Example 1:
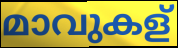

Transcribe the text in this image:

മാവുകള്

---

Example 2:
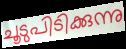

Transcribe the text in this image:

ചൂടുപിടിക്കുന്നു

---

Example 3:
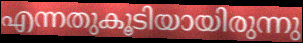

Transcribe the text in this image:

എന്നതുകൂടിയായിരുന്നു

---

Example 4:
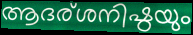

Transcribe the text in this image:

ആദര്ശനിഷ്ഠയും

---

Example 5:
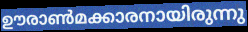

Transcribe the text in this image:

ഊരാൺമക്കാരനായിരുന്നു